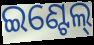
ଇଣ୍ଟେଲ୍